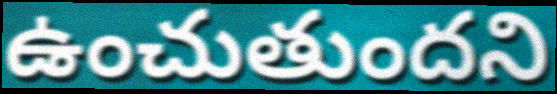
ఉంచుతుందని